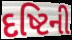
દષ્ટિની